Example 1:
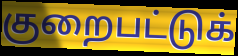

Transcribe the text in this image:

குறைபட்டுக்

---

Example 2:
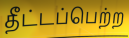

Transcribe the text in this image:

தீட்டப்பெற்ற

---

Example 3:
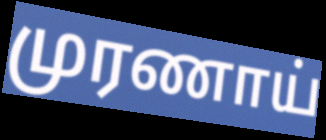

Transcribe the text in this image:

முரணாய்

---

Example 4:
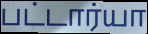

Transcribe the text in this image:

பட்டார்யா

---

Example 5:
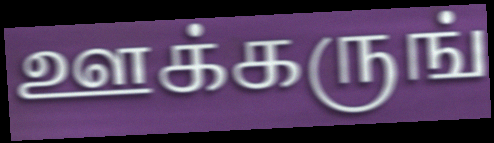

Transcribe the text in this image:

ஊக்கருங்